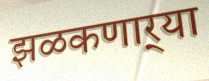
झळकणार्या